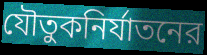
যৌতুকনির্যাতনের